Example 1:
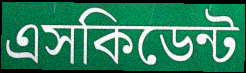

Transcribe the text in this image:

এসকিডেন্ট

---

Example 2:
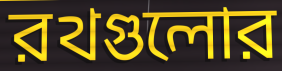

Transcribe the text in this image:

রথগুলোর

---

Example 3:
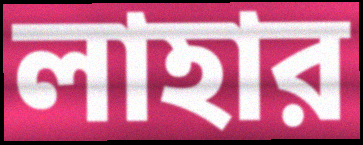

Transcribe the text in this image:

লাহার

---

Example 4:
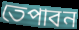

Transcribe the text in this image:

তেপাবন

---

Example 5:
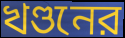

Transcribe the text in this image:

খণ্ডনের